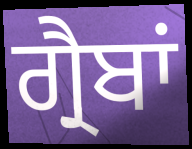
ਗ੍ਰੈਬਾਂ